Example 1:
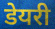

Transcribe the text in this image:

डेयरी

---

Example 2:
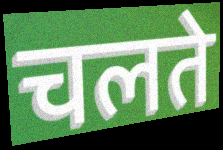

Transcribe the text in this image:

चलते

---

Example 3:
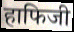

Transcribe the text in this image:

हाफिजी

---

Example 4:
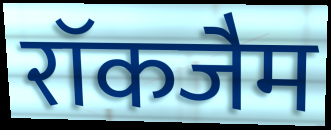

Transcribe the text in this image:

रॉकजैम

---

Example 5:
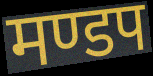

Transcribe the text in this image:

मण्‍डप